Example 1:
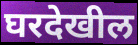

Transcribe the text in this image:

घरदेखील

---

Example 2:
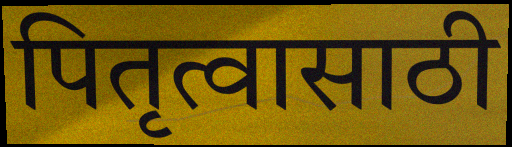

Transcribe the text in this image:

पितृत्वासाठी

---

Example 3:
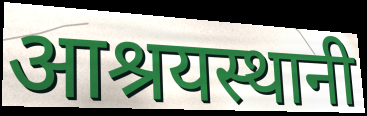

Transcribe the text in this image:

आश्रयस्थानी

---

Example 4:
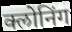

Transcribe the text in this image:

क्लोनिंग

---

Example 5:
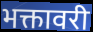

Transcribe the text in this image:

भक्तावरी